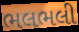
ભલભલી